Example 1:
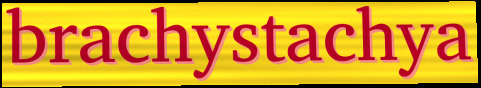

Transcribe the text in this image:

brachystachya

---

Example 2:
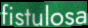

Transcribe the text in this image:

fistulosa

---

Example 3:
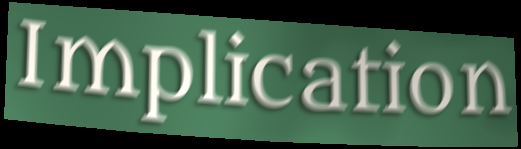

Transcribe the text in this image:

Implication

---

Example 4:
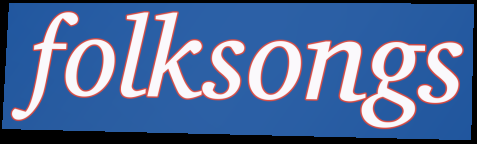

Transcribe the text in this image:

folksongs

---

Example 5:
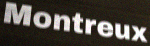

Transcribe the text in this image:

Montreux